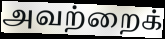
அவற்றைக்